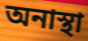
অনাস্থা